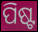
ପିଷ୍ଟ